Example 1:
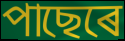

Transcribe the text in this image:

পাছেৰে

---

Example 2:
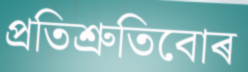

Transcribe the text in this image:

প্ৰতিশ্ৰুতিবোৰ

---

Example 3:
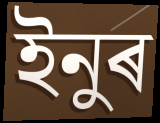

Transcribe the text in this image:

ইনুৰ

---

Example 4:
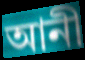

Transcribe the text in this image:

আনী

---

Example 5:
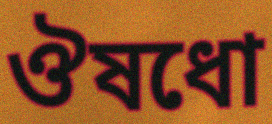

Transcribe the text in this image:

ঔষধো